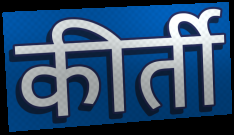
कीर्ती